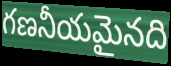
గణనీయమైనది